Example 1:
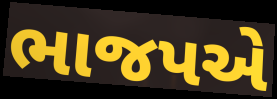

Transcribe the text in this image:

ભાજપએ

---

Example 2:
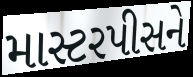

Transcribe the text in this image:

માસ્ટરપીસને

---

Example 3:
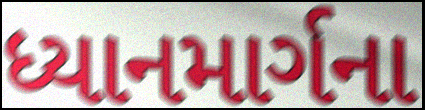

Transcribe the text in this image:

ધ્યાનમાર્ગના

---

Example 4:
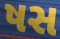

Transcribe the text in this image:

ષસ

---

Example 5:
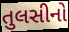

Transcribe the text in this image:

તુલસીનો